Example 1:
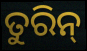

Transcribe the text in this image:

ତୁରିନ୍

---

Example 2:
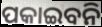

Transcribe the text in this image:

ପକାଇବନି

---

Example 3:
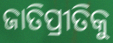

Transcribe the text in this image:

ଜାତିପ୍ରୀତିକୁ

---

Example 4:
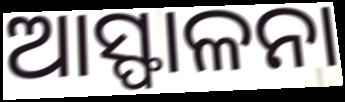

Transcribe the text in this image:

ଆସ୍ଫାଳନା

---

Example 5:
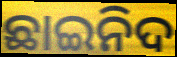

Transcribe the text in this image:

ଛାଇନିଦ